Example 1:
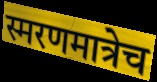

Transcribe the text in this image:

स्मरणमात्रेच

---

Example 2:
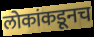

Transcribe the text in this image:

लोकांकडूनच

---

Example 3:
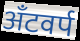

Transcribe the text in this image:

अँटवर्प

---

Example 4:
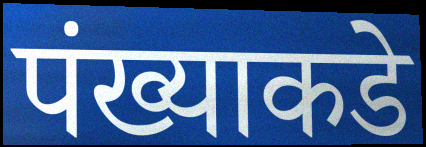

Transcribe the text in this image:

पंख्याकडे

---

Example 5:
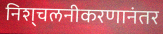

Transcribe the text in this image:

निश्चलनीकरणानंतर